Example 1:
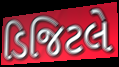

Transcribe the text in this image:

ડિજિટલે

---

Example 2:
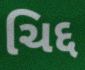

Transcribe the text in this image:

ચિદ્દ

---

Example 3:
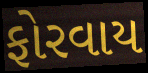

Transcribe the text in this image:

ફોરવાય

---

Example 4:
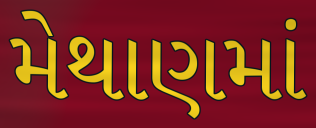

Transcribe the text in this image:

મેથાણમાં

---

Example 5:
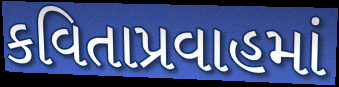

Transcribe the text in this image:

કવિતાપ્રવાહમાં